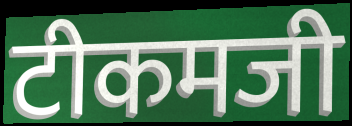
टीकमजी